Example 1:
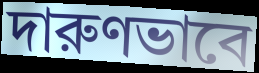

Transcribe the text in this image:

দারুণভাবে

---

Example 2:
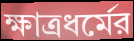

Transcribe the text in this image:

ক্ষাত্রধর্মের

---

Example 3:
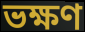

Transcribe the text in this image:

ভক্ষণ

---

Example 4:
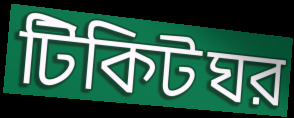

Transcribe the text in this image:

টিকিটঘর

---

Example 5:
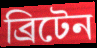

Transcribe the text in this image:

ব্রিটেন